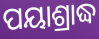
ପୟାଶ୍ରାଦ୍ଧ